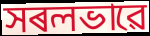
সৰলভাৱে